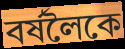
বৰ্ষলৈকে